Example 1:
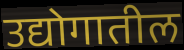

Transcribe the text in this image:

उद्योगातील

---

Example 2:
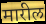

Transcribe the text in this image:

मारील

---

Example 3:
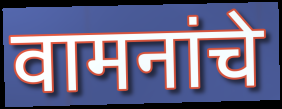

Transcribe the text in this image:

वामनांचे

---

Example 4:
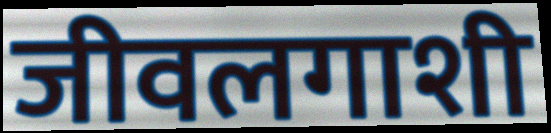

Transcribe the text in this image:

जीवलगाशी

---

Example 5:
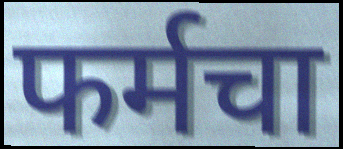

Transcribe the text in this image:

फर्मचा